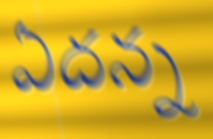
ఏదన్న